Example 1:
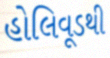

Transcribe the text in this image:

હોલિવૂડથી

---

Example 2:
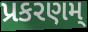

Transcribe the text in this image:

પ્રકરણમ્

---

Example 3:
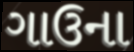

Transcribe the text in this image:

ગાઉના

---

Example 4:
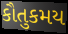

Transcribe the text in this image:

કૌતુકમય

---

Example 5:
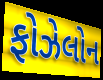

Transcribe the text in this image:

ફોઝેલોન